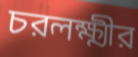
চরলক্ষ্মীর